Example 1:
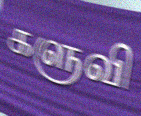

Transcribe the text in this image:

களுவி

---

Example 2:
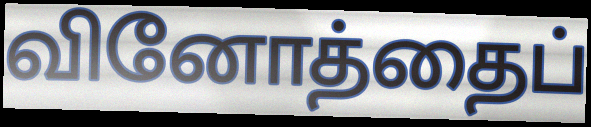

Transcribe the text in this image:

வினோத்தைப்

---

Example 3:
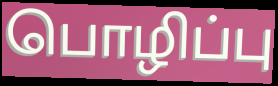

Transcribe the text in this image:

பொழிப்பு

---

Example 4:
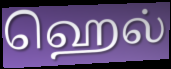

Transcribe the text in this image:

ஹெல்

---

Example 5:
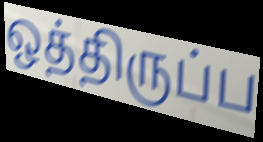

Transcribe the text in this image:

ஒத்திருப்ப